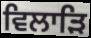
ਵਿਲਾੜਿ